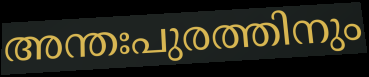
അന്തഃപുരത്തിനും